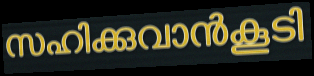
സഹിക്കുവാൻകൂടി